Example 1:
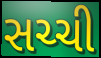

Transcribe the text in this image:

સચ્ચી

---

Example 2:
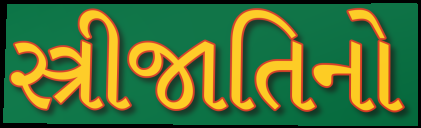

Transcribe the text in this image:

સ્ત્રીજાતિનો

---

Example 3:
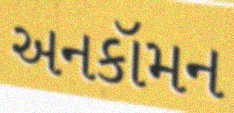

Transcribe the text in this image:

અનકૉમન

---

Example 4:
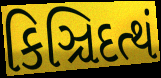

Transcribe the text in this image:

કિઞ્ચિદત્થં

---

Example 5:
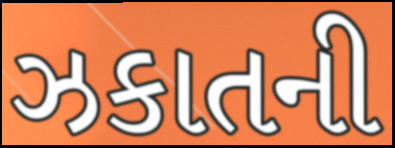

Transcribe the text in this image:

ઝકાતની